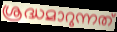
ശ്രദ്ധമാറുന്നത്